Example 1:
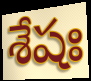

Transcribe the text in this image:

శేషః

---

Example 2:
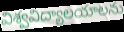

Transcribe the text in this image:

విశ్వవిద్యాలయాలను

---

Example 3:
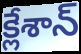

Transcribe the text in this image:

క్లేశాన్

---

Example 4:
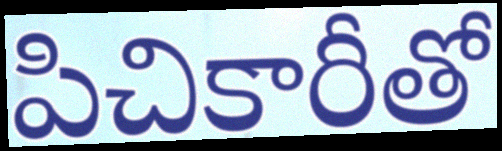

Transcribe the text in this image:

పిచికారీతో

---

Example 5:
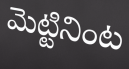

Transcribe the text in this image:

మెట్టినింట